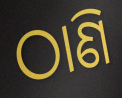
ଠାଣି